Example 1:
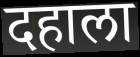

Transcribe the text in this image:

दहाला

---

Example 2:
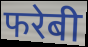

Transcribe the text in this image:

फरेबी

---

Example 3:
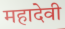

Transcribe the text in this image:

महादेवी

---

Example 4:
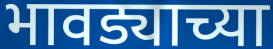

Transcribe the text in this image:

भावड्याच्या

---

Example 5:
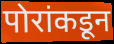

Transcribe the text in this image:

पोरांकडून